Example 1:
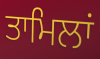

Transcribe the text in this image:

ਤਾਮਿਲਾਂ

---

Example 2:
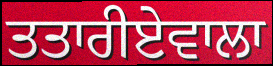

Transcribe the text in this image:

ਤਤਾਰੀਏਵਾਲਾ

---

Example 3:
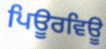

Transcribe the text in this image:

ਪਿਊਰਵਿਊ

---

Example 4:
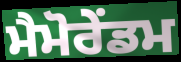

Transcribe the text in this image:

ਮੈਮੋਰੇਂਡਮ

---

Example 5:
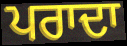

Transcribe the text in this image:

ਪਰਾਦਾ